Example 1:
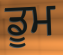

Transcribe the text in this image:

ਡੂਮ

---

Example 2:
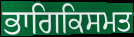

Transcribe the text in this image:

ਭਾਗਿਕਿਸਮਤ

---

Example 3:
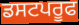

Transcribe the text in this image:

ਡਸਟਪਰੂਫ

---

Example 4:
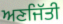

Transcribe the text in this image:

ਅਣਜਿੱਤੀ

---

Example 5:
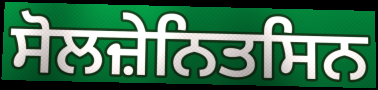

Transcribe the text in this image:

ਸੋਲਜ਼ੇਨਿਤਸਿਨ